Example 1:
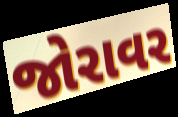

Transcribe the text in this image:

જોરાવર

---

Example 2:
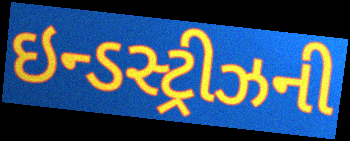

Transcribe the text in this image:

ઇન્ડસ્ટ્રીઝની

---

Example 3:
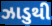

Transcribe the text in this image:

ઝાડુથી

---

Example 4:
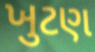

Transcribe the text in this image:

ખુટણ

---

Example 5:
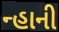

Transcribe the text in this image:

ન્હાની